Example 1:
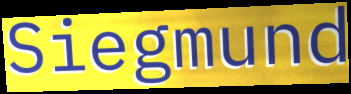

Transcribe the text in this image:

Siegmund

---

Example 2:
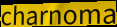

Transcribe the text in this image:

charnoma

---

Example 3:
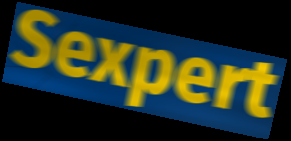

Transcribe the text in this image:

Sexpert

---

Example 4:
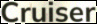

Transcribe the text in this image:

Cruiser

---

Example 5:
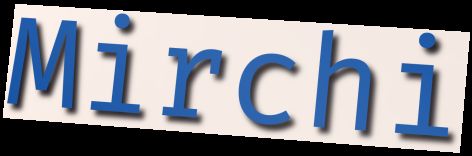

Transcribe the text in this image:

Mirchi